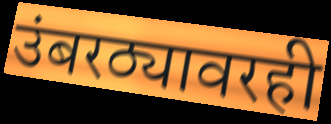
उंबरठ्यावरही